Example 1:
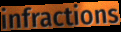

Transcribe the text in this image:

infractions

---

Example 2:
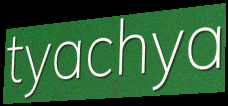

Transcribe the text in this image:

tyachya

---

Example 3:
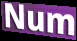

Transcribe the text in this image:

Num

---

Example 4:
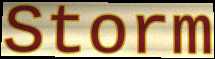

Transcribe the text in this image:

Storm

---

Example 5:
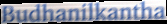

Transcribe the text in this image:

Budhanilkantha